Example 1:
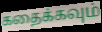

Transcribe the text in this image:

கதைக்கவும்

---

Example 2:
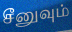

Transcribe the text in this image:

சீனுவும்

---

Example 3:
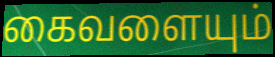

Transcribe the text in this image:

கைவளையும்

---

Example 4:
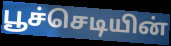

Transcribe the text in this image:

பூச்செடியின்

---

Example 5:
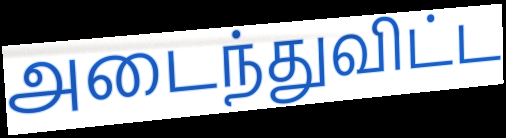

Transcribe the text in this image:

அடைந்துவிட்ட